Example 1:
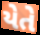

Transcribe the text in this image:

યેતે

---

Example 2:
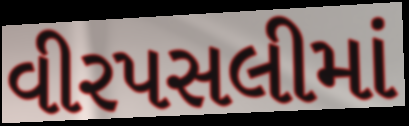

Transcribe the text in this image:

વીરપસલીમાં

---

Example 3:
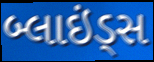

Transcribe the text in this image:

બ્લાઇંડ્સ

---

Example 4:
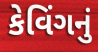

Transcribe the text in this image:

કેવિંગનું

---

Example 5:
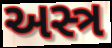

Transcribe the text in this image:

અસ્ત્ર